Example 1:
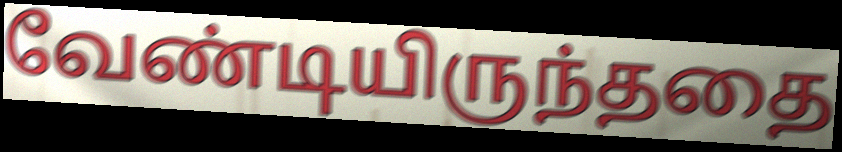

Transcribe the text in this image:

வேண்டியிருந்ததை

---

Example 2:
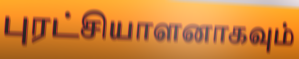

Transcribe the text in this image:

புரட்சியாளனாகவும்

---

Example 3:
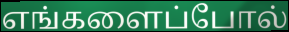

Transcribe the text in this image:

எங்களைப்போல்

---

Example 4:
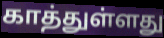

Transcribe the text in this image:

காத்துள்ளது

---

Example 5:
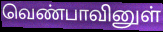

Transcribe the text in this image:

வெண்பாவினுள்